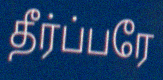
தீர்ப்பரே